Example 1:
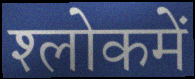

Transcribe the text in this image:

श्‍लोकमें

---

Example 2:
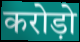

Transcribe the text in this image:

करोड़ो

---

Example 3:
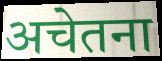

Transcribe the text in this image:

अचेतना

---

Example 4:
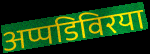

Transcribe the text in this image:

अप्पडिविरया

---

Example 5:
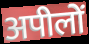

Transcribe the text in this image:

अपीलों